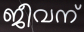
ജീവന്